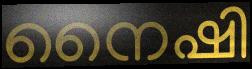
നൈഷി